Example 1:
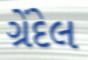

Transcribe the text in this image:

ગ્રેંદેલ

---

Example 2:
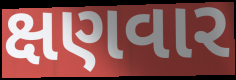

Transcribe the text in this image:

ક્ષણવાર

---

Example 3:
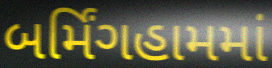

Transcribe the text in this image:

બર્મિંગહામમાં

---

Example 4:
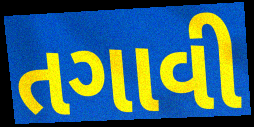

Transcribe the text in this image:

તગાવી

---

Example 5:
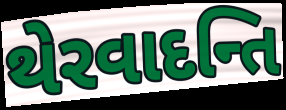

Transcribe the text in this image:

થેરવાદન્તિ